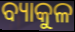
ବ୍ୟାକୁଳ